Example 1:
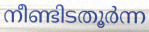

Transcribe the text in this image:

നീണ്ടിടതൂർന്ന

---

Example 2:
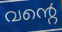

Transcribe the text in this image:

വന്റെ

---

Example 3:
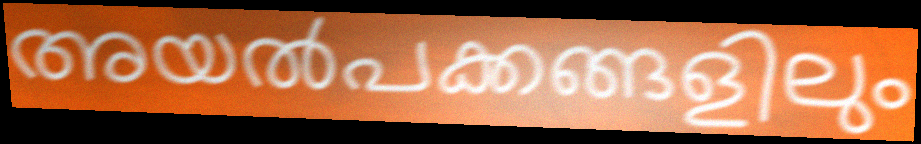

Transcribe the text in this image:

അയൽപക്കങ്ങളിലും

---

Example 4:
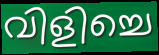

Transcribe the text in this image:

വിളിച്ചെ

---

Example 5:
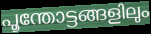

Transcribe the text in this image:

പൂന്തോട്ടങ്ങളിലും